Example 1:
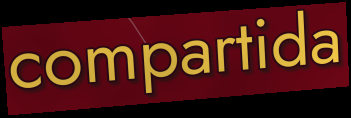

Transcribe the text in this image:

compartida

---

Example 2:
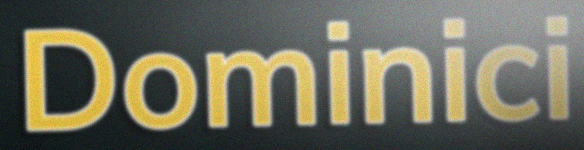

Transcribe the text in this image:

Dominici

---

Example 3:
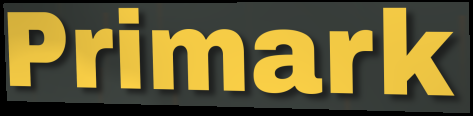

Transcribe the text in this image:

Primark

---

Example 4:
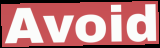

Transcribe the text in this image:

Avoid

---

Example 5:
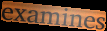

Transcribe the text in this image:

examines